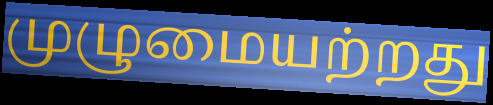
முழுமையற்றது